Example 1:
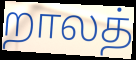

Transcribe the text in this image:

றாலத்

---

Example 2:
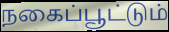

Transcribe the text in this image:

நகைப்பூட்டும்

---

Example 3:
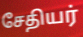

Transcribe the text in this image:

சேதியர்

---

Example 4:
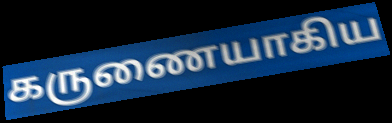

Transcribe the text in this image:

கருணையாகிய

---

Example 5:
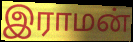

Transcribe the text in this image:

இராமன்